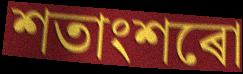
শতাংশৰো